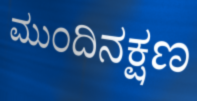
ಮುಂದಿನಕ್ಷಣ